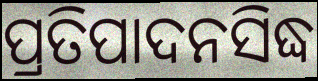
ପ୍ରତିପାଦନସିଦ୍ଧ